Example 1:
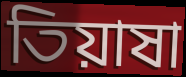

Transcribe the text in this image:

তিয়াষা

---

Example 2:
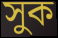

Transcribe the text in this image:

সুক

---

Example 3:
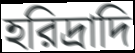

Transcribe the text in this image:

হরিদ্রাদি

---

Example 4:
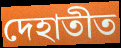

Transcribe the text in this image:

দেহাতীত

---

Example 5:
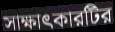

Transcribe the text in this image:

সাক্ষাৎকারটির